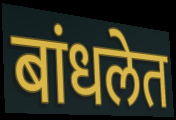
बांधलेत